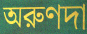
অরুণদা